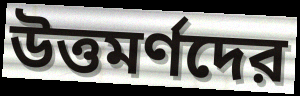
উত্তমর্ণদের